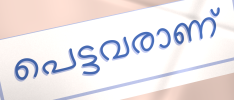
പെട്ടവരാണ്